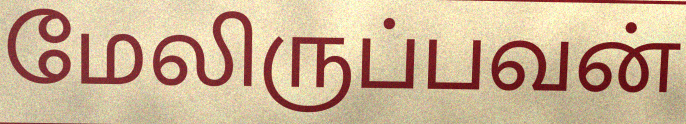
மேலிருப்பவன்